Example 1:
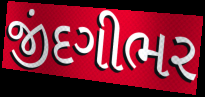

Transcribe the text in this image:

જીંદગીભર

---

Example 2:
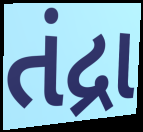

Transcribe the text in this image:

તંદ્રા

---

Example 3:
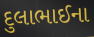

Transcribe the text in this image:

દુલાભાઈના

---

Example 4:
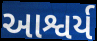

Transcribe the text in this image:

આશ્વર્ય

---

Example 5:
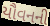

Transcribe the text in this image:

યૌવનની